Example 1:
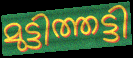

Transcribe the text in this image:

മുട്ടിത്തട്ടി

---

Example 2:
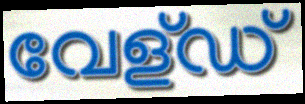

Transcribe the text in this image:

വേള്ഡ്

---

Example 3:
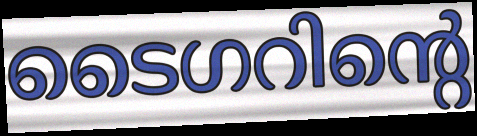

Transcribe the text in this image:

ടൈഗറിന്റെ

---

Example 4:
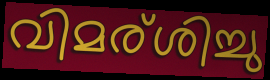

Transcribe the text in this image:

വിമര്ശിച്ചു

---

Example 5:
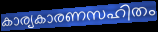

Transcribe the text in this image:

കാര്യകാരണസഹിതം